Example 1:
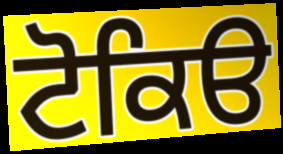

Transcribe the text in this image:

ਟੋਕਿੳ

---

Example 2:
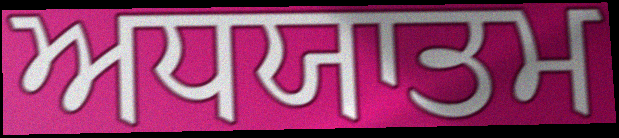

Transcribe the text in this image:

ਅਧਯਾਤਮ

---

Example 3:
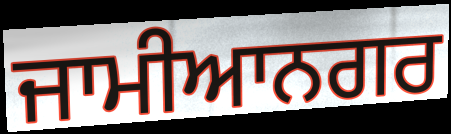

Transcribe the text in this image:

ਜਾਮੀਆਨਗਰ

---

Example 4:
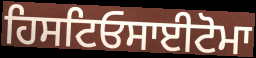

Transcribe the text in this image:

ਹਿਸਟਿਓਸਾਈਟੋਮਾ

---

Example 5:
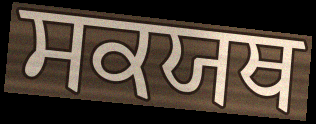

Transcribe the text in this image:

ਸਕਯਥ